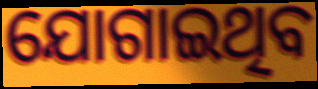
ଯୋଗାଇଥିବ